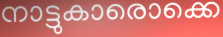
നാട്ടുകാരൊക്കെ